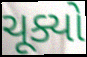
ચૂક્યો